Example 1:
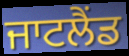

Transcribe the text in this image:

ਜਾਟਲੈਂਡ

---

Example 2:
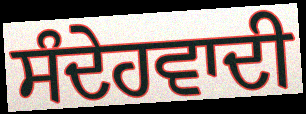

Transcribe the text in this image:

ਸੰਦੇਹਵਾਦੀ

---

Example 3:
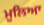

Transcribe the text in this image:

ਮੂਲਿਆ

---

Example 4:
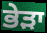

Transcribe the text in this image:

ਭੇੜਾ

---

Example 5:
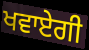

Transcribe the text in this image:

ਖਵਾਏਗੀ